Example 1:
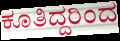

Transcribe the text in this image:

ಕೂತಿದ್ದರಿಂದ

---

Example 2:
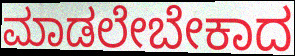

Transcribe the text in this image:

ಮಾಡಲೇಬೇಕಾದ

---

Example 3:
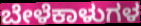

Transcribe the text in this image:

ಬೇಳೆಕಾಳುಗಳ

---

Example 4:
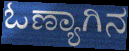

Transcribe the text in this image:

ಓಣ್ಯಾಗಿನ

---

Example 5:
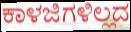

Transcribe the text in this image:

ಕಾಳಜಿಗಳಿಲ್ಲದ